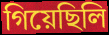
গিয়েছিলি